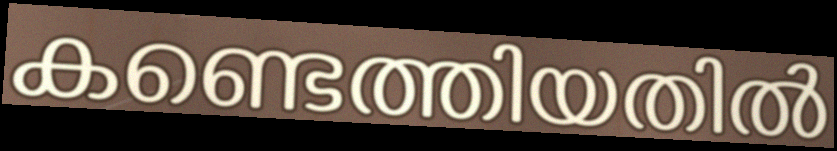
കണ്ടെത്തിയതിൽ